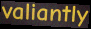
valiantly